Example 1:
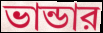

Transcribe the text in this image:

ভান্ডার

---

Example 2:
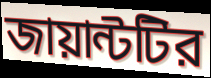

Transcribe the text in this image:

জায়ান্টটির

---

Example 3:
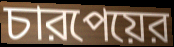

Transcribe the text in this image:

চারপেয়ের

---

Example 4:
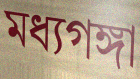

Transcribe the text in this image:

মধ্যগঙ্গা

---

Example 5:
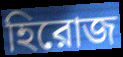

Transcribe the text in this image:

হিরোজ